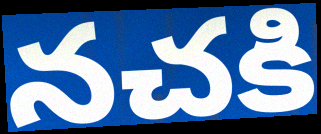
నచకి